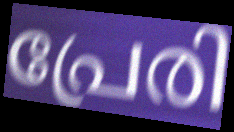
പ്രേരി